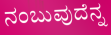
ನಂಬುವುದೆನ್ನ